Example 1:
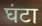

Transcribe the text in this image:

घंटा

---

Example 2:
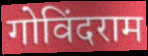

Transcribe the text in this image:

गोविंदराम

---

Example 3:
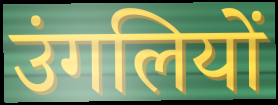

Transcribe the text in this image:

उंगलियों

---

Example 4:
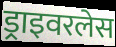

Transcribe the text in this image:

ड्राइवरलेस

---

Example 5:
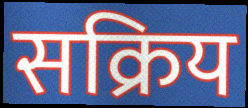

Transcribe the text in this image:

सक्रिय